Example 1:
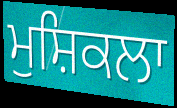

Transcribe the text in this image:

ਮੁਸ਼ਿਕਲਾ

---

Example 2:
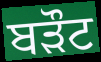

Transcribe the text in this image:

ਬੜੌਟ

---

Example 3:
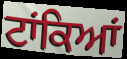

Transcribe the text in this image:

ਟਾਂਕਿਆਂ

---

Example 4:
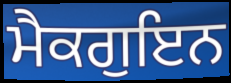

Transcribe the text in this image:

ਮੈਕਗੁਇਨ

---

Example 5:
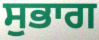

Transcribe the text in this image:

ਸੁਭਾਗ